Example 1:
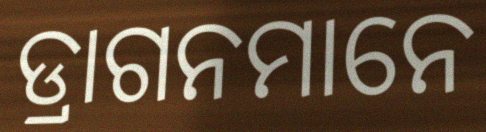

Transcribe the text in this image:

ଡ୍ରାଗନମାନେ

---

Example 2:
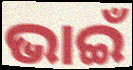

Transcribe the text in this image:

ଭାଇଁ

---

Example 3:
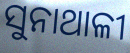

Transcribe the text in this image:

ସୁନାଥାଳୀ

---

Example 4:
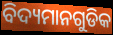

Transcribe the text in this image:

ବିଦ୍ୟମାନଗୁଡିକ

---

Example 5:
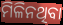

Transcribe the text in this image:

ମିଳିନଥିବା